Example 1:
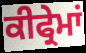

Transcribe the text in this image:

ਕੀਫ੍ਰੇਮਾਂ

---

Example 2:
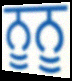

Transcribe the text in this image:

ਨੂਨੂ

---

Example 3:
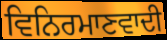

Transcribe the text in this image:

ਵਿਨਿਰਮਾਣਵਾਦੀ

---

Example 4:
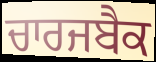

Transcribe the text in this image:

ਚਾਰਜਬੈਕ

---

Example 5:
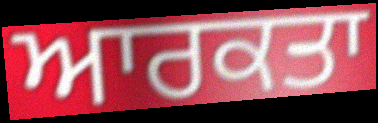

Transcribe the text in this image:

ਆਰਕਤਾ